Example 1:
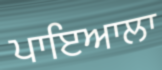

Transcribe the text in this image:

ਪਾਇਆਲਾ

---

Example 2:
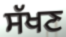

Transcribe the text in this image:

ਸੱਖਣ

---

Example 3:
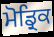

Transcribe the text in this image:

ਮੋਡ੍ਰਿਕ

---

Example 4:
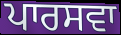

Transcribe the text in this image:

ਪਾਰਸਵਾ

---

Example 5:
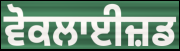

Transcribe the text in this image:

ਵੋਕਲਾਈਜ਼ਡ